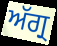
ਅੱਗ੍ਰ